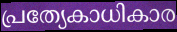
പ്രത്യേകാധികാര